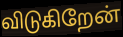
விடுகிறேன்